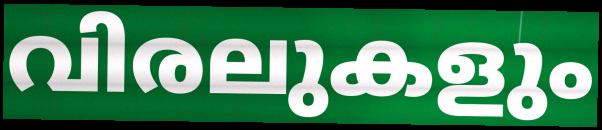
വിരലുകളും